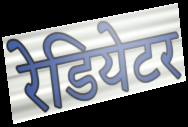
रेडियेटर